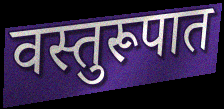
वस्तुरूपात